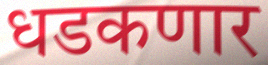
धडकणार